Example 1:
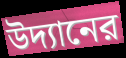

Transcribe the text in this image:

উদ্যানের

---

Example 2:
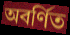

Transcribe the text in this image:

অবর্ণিত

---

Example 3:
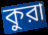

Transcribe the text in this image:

কুরা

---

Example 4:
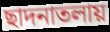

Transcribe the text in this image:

ছাদনাতলায়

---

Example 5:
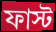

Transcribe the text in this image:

ফাস্ট